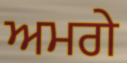
ਅਮਗੇ